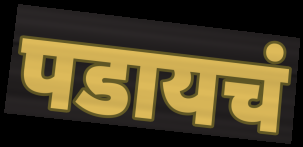
पडायचं